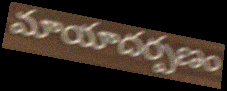
మాయాదర్పణం